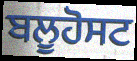
ਬਲੂਹੋਸਟ